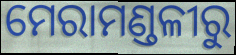
ମେରାମଣ୍ଡଳୀରୁ